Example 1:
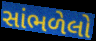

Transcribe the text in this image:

સાંભળેલો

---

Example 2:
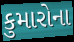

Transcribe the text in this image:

કુમારોના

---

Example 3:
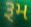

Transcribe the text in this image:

રૂમ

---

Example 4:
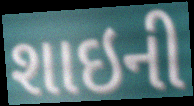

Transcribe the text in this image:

શાઇની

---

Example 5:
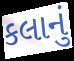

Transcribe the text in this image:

કલાનું